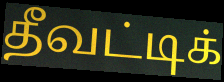
தீவட்டிக்